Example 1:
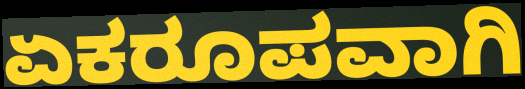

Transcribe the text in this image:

ಏಕರೂಪವಾಗಿ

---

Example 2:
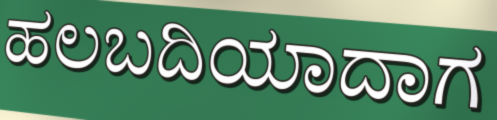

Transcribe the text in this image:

ಹಲಬದಿಯಾದಾಗ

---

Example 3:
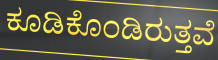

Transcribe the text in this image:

ಕೂಡಿಕೊಂಡಿರುತ್ತವೆ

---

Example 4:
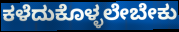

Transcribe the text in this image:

ಕಳೆದುಕೊಳ್ಳಲೇಬೇಕು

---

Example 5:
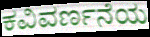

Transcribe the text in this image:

ಕವಿವರ್ಣನೆಯ